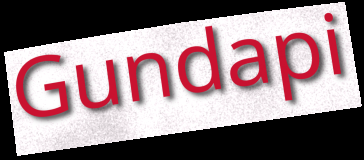
Gundapi